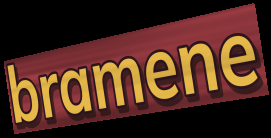
bramene